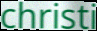
christi